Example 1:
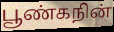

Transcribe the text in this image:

பூண்கநின்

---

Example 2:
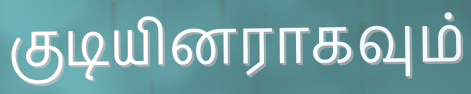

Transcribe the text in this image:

குடியினராகவும்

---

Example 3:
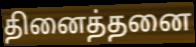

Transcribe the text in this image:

தினைத்தனை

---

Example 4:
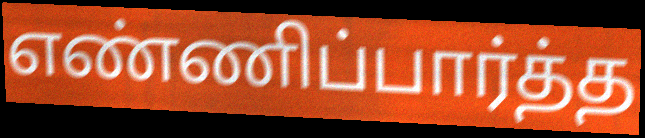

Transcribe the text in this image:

எண்ணிப்பார்த்த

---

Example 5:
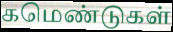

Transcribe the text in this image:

கமெண்டுகள்